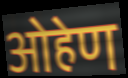
ओहेण